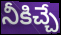
నీకిచ్చే